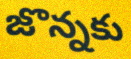
జొన్నకు